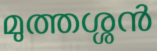
മുത്തശ്ശൻ